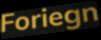
Foriegn